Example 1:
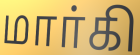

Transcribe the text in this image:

மார்கி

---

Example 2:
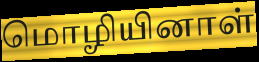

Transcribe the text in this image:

மொழியினாள்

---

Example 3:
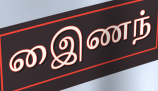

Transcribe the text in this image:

இைணந்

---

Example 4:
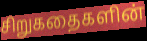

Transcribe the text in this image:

சிறுகதைகளின்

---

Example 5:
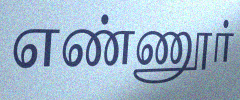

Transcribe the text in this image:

எண்ணூர்